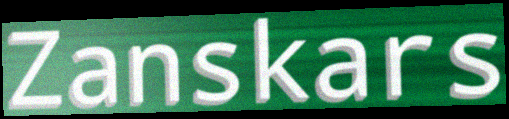
Zanskars